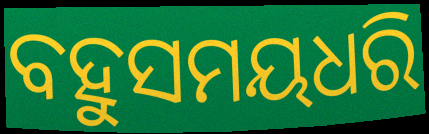
ବହୁସମୟଧରି